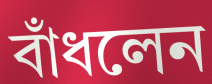
বাঁধলেন